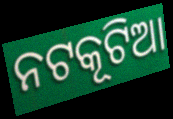
ନଟକୂଟିଆ